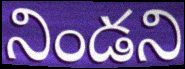
నిండని